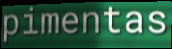
pimentas